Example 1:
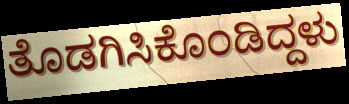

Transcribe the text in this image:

ತೊಡಗಿಸಿಕೊಂಡಿದ್ದಳು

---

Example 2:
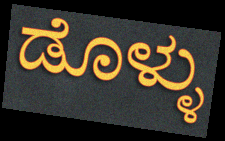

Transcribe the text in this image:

ಡೊಳ್ಳು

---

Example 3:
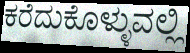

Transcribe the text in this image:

ಕರೆದುಕೊಳ್ಳುವಲ್ಲಿ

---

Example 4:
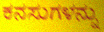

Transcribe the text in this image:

ಕನಸುಗಳನ್ನು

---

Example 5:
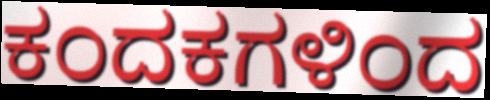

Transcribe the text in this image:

ಕಂದಕಗಳಿಂದ